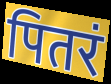
पितरं